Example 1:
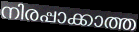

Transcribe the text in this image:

നിരപ്പാക്കാത്ത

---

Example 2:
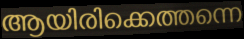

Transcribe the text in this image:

ആയിരിക്കെത്തന്നെ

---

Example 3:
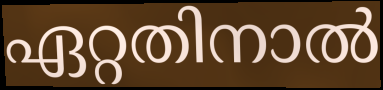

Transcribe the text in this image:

ഏറ്റതിനാൽ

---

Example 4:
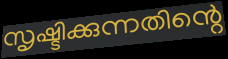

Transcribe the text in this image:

സൃഷ്ടിക്കുന്നതിന്റെ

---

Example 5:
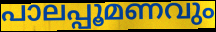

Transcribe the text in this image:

പാലപ്പൂമണവും